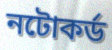
নটোকর্ড